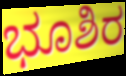
ಭೂಶಿರ